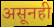
असूनही